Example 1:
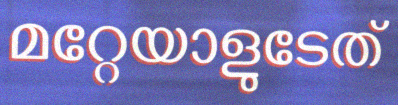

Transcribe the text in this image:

മറ്റേയാളുടേത്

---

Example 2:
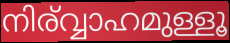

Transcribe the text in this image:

നിര്വ്വാഹമുള്ളൂ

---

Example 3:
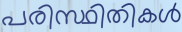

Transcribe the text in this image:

പരിസ്ഥിതികൾ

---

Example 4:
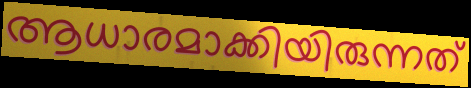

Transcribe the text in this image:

ആധാരമാക്കിയിരുന്നത്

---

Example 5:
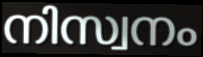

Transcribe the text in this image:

നിസ്വനം